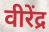
वीरेंद्र